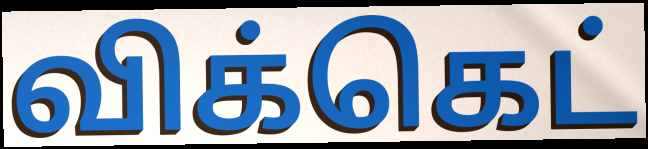
விக்கெட்